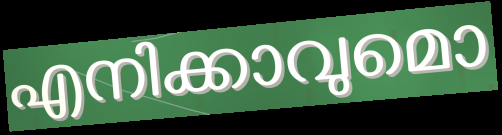
എനിക്കാവുമൊ